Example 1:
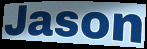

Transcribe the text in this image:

Jason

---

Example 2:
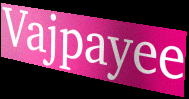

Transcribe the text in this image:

Vajpayee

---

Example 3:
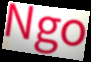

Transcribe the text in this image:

Ngo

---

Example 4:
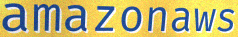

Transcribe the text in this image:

amazonaws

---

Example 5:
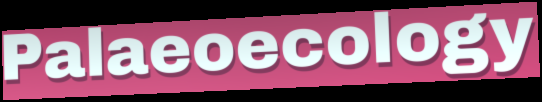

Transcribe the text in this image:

Palaeoecology